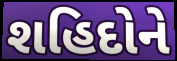
શહિદોને